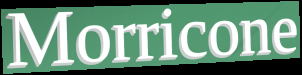
Morricone